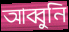
আব্বুনি